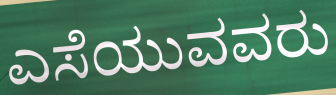
ಎಸೆಯುವವರು